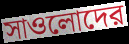
সাওলোদের